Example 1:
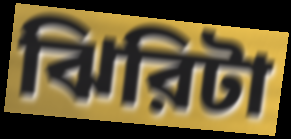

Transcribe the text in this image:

ঝিরিটা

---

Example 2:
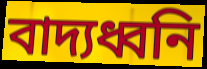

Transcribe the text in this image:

বাদ্যধ্বনি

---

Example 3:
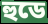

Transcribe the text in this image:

হুডে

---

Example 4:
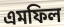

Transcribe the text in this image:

এমফিল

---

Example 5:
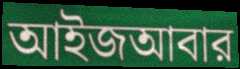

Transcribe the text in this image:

আইজআবার